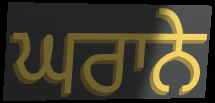
ਘਰਾਨੇ